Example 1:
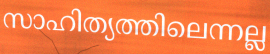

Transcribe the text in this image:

സാഹിത്യത്തിലെന്നല്ല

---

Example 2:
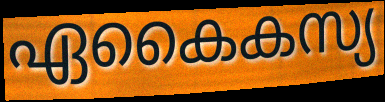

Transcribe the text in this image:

ഏകൈകസ്യ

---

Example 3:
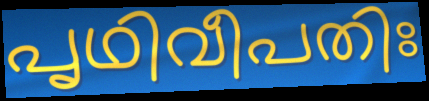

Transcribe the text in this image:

പൃഥിവീപതിഃ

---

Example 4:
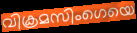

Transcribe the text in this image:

വിക്രമസിംഗെയെ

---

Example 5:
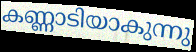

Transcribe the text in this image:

കണ്ണാടിയാകുന്നു